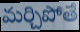
మర్చిపోతే